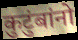
कुटुंबांनो